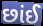
છાંઈ